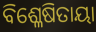
ବିଶ୍ଳେଷିତାୟା